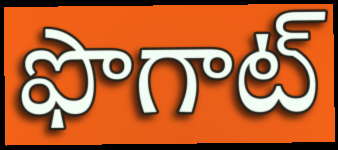
ఫొగాట్